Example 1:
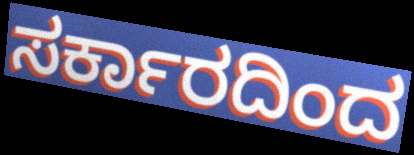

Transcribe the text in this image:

ಸರ್ಕಾರದಿಂದ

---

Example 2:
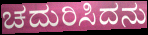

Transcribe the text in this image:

ಚದುರಿಸಿದನು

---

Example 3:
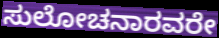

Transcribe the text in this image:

ಸುಲೋಚನಾರವರೇ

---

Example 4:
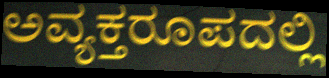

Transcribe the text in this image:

ಅವ್ಯಕ್ತರೂಪದಲ್ಲಿ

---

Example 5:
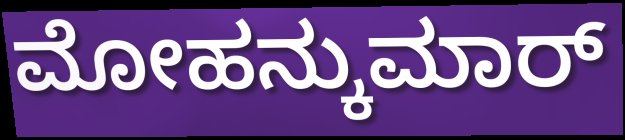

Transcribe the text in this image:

ಮೋಹನ್ಕುಮಾರ್